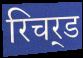
रिचर्ड